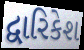
દ્વારિકેશ